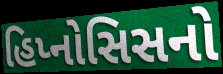
હિપ્નોસિસનો